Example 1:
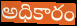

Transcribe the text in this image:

అధికారం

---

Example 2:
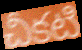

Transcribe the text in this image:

చీకటి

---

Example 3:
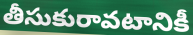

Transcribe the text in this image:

తీసుకురావటానికీ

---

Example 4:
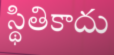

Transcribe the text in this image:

స్థితికాదు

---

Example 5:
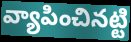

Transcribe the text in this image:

వ్యాపించినట్టి